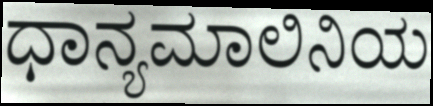
ಧಾನ್ಯಮಾಲಿನಿಯ